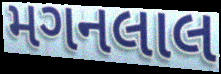
મગનલાલ